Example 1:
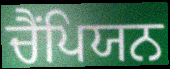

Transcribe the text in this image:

ਚੈੰਪਿਯਨ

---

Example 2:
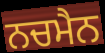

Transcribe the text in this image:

ਨਚਮੈਨ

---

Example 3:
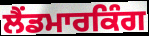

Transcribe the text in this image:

ਲੈਂਡਮਾਰਕਿੰਗ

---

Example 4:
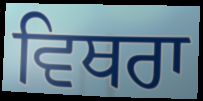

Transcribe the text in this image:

ਵਿਥਰਾ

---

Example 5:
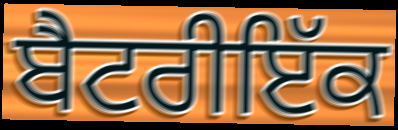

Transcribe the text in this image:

ਬੈਟਰੀਇੱਕ